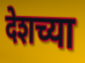
देशच्या